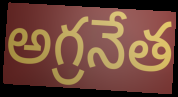
అగ్రనేత